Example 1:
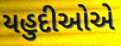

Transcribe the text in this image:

યહુદીઓએ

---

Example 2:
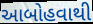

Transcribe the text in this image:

આબોહવાથી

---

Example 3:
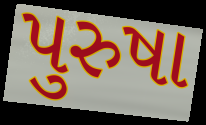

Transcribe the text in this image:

પુરુષા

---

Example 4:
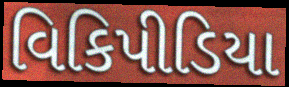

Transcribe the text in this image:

વિકિપીડિયા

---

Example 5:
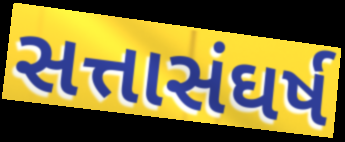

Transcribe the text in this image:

સત્તાસંઘર્ષ